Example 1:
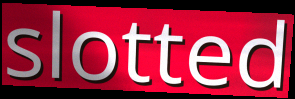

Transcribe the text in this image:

slotted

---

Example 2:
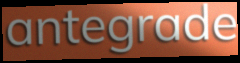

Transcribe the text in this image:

antegrade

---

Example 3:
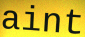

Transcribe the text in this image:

aint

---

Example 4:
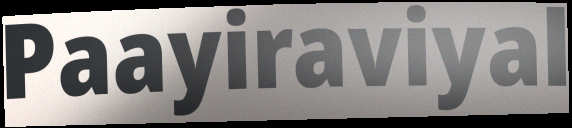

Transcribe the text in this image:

Paayiraviyal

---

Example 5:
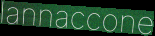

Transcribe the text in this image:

Iannaccone